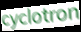
cyclotron